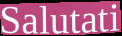
Salutati